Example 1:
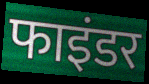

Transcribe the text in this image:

फाइंडर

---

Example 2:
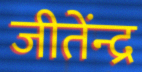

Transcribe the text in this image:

जीतेंन्द्र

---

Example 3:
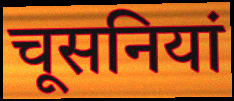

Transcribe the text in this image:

चूसनियां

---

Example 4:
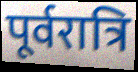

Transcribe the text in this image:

पूर्वरात्रि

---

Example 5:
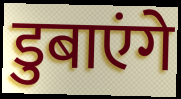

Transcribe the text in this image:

डुबाएंगे